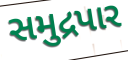
સમુદ્રપાર